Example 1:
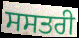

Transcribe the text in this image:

ਸਸਤਰੀ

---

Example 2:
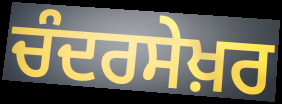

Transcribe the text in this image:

ਚੰਦਰਸੇਖ਼ਰ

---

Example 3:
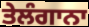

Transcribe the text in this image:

ਤੇਲੰਗਾਨਾ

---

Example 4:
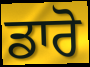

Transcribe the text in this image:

ਡਾਰੋ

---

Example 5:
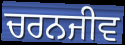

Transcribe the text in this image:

ਚਰਨਜੀਵ